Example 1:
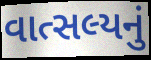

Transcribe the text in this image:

વાત્સલ્યનું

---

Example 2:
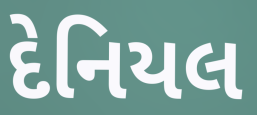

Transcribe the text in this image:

દેનિયલ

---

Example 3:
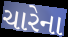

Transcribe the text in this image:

ચારેના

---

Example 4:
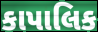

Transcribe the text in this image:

કાપાલિક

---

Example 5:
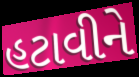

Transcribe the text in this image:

હટાવીને